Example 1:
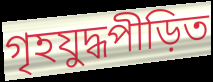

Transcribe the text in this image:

গৃহযুদ্ধপীড়িত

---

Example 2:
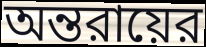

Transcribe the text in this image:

অন্তরায়ের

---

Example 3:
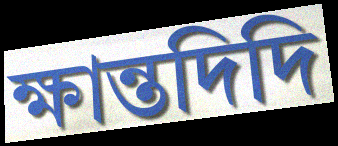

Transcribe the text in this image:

ক্ষান্তদিদি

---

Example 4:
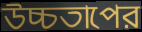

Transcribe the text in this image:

উচ্চতাপের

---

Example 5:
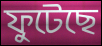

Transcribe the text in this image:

ফুটেছে